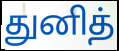
துனித்